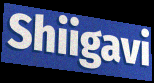
Shiigavi